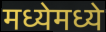
मध्येमध्ये